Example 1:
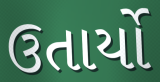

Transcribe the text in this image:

ઉતાર્યો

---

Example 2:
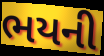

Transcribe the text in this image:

ભયની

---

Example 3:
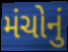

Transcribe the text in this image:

મંચોનું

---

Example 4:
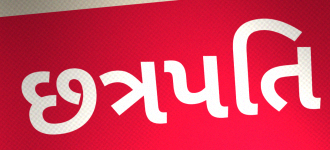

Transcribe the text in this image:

છત્રપતિ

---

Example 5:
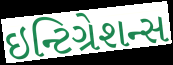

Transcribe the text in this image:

ઇન્ટિગ્રેશન્સ